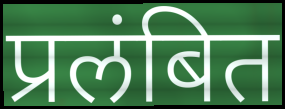
प्रलंबित